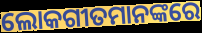
ଲୋକଗୀତମାନଙ୍କରେ